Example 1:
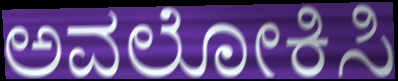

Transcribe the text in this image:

ಅವಲೋಕಿಸಿ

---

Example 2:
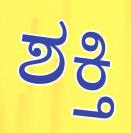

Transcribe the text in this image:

ಶಕ್ತಿ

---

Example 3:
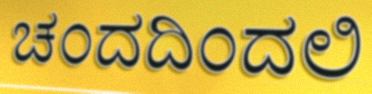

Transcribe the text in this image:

ಚಂದದಿಂದಲಿ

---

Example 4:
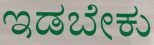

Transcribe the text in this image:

ಇಡಬೇಕು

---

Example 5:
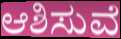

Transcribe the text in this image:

ಆಶಿಸುವೆ